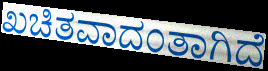
ಖಚಿತವಾದಂತಾಗಿದೆ